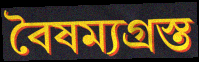
বৈষম্যগ্রস্ত